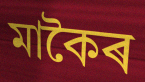
মাকৈৰ